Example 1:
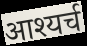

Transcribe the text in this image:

आश्यर्च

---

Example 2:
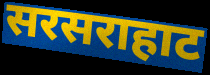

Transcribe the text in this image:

सरसराहाट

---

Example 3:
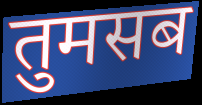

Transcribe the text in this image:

तुमसब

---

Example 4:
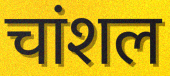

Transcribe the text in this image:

चांशल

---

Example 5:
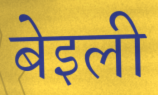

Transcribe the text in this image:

बेइली